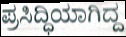
ಪ್ರಸಿದ್ಧಿಯಾಗಿದ್ದ